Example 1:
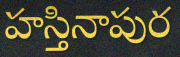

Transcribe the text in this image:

హస్తినాపుర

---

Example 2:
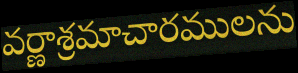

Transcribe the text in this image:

వర్ణాశ్రమాచారములను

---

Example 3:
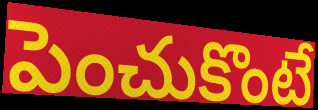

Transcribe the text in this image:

పెంచుకొంటే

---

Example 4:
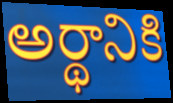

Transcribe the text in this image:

అర్థానికి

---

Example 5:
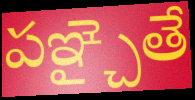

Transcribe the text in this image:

పఞ్చైతే